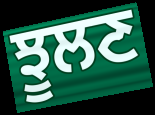
ਝੂਲਣ